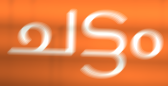
ചട്ടം